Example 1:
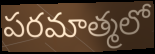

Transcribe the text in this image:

పరమాత్మలో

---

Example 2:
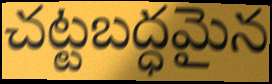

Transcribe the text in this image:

చట్టబద్ధమైన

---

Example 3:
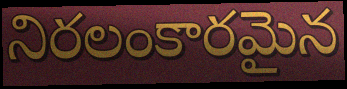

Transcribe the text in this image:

నిరలంకారమైన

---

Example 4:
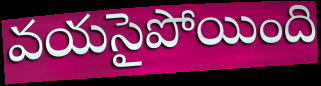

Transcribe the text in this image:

వయసైపోయింది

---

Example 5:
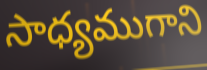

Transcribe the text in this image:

సాధ్యముగాని